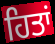
ਹਿਤਾਂ